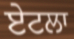
ਏਟਲਾ